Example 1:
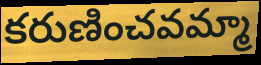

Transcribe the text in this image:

కరుణించవమ్మా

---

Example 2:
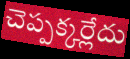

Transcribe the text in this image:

చెప్పక్కర్లేదు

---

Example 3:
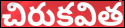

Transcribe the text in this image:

చిరుకవిత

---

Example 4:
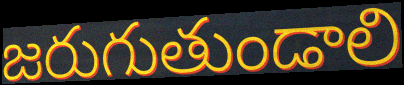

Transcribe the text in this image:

జరుగుతుండాలి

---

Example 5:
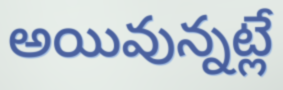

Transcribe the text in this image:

అయివున్నట్లే